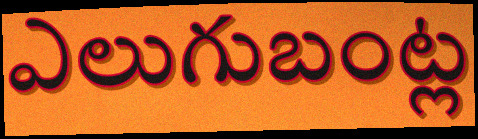
ఎలుగుబంట్ల